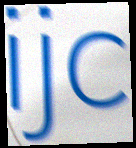
ijc